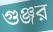
গুঞ্জর